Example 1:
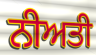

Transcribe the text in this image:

ਨੀਅਤੀ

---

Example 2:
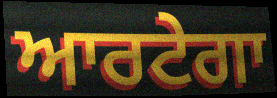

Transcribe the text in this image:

ਆਰਟੇਗਾ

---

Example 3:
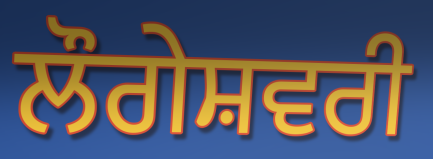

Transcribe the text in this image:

ਲੌਗੇਸ਼ਵਰੀ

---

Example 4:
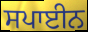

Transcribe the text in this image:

ਸਪਾਈਨ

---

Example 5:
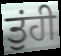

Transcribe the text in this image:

ਤੁਂਹੀ